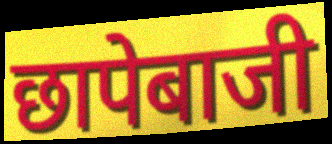
छापेबाजी